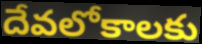
దేవలోకాలకు